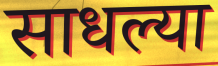
साधल्या